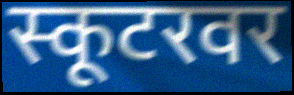
स्कूटरवर